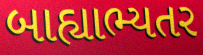
બાહ્યાભ્યતર